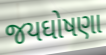
જયઘોષણા